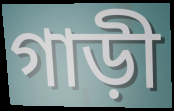
গাড়ী